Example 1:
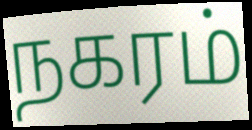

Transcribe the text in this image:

நகரம்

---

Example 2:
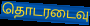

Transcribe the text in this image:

தொடரடைவு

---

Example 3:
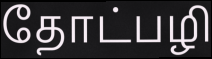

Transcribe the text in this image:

தோட்பழி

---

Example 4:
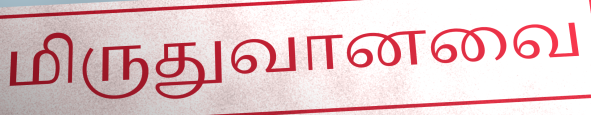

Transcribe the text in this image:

மிருதுவானவை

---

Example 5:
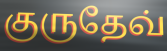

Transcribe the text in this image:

குருதேவ்